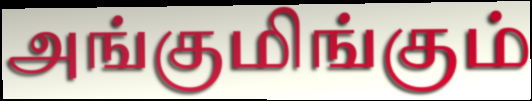
அங்குமிங்கும்